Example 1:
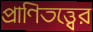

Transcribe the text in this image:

প্রাণিতত্ত্বের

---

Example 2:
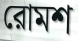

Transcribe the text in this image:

রোমশ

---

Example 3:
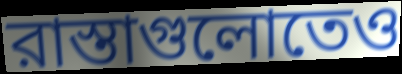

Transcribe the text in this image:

রাস্তাগুলোতেও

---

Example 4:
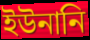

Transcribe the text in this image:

ইউনানি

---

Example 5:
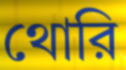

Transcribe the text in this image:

থোরি